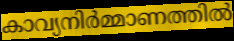
കാവ്യനിർമ്മാണത്തിൽ